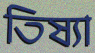
তিষ্যা